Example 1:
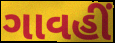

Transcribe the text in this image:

ગાવહીં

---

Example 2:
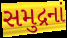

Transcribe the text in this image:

સમુદ્રનાં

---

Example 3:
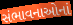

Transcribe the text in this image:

સંભાવનાઓનાં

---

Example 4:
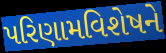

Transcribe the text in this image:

પરિણામવિશેષને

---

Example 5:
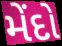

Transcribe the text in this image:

મેંદો